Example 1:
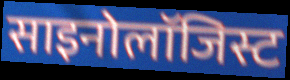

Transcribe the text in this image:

साइनोलॉजिस्ट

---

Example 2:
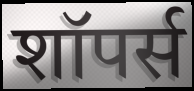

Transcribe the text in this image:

शॉपर्स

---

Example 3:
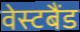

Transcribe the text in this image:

वेस्टबैंड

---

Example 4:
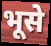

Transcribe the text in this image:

भूसे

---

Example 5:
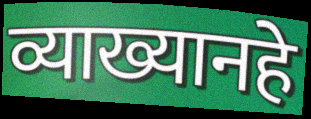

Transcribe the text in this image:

व्याख्यानहे